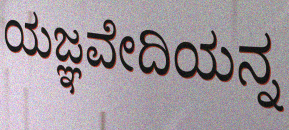
ಯಜ್ಞವೇದಿಯನ್ನ